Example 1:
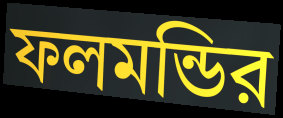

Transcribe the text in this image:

ফলমন্ডির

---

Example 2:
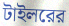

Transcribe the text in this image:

টাইলরের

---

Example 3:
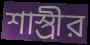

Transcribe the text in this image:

শাস্ত্রীর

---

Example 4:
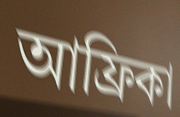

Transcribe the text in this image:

আফ্রিকা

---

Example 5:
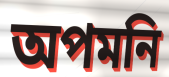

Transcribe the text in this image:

অপমনি